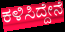
ಕಳಿಸಿದ್ದೇನೆ